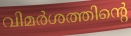
വിമർശത്തിന്റെ